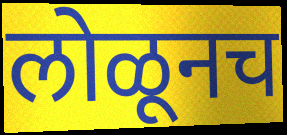
लोळूनच